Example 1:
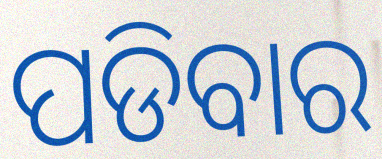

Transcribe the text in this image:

ପଡିବାର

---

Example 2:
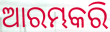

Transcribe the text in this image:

ଆରମ୍ଭକରି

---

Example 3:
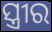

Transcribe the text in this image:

ସ୍ତ୍ରୀର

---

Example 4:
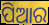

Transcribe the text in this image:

ପିଆର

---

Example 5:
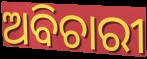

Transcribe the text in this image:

ଅବିଚାରୀ